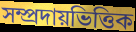
সম্প্ৰদায়ভিত্তিক